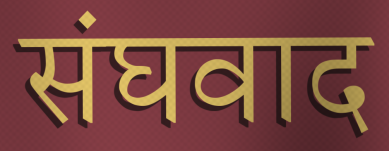
संघवाद